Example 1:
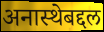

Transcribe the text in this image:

अनास्थेबद्दल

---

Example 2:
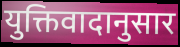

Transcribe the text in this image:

युक्तिवादानुसार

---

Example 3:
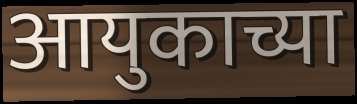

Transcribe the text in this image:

आयुकाच्या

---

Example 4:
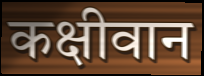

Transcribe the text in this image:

कक्षीवान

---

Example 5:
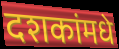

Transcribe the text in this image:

दशकांमधे